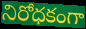
నిరోధకంగా